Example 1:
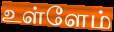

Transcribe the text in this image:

உள்ளேம்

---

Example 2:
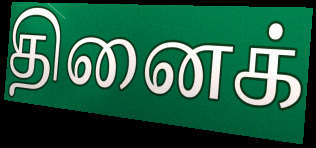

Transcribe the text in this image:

தினைக்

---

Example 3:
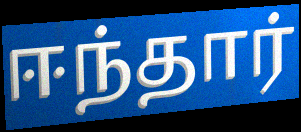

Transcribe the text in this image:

ஈந்தார்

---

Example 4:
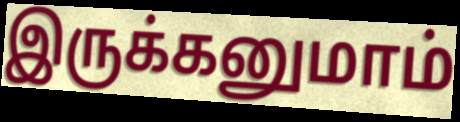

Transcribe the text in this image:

இருக்கனுமாம்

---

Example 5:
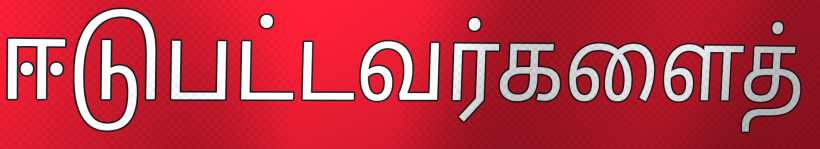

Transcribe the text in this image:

ஈடுபட்டவர்களைத்